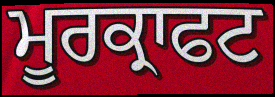
ਮੂਰਕ੍ਰਾਫਟ